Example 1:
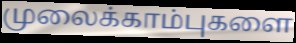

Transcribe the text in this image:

முலைக்காம்புகளை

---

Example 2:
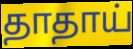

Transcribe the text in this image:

தாதாய்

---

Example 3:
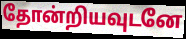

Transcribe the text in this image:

தோன்றியவுடனே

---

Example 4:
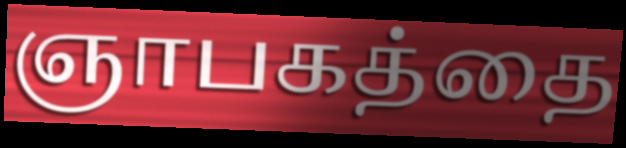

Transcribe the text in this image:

ஞாபகத்தை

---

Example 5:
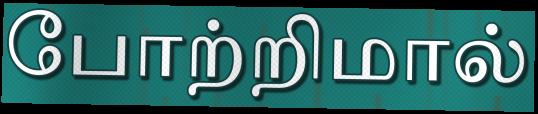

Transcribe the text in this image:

போற்றிமால்